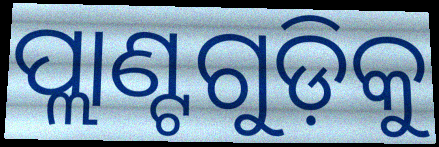
ପ୍ଲାଣ୍ଟଗୁଡ଼ିକୁ